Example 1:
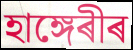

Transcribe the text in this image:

হাঙ্গেৰীৰ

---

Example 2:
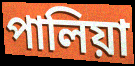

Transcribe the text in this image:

পালিয়া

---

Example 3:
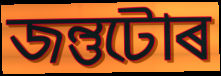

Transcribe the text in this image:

জন্তুটোৰ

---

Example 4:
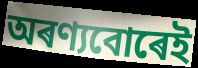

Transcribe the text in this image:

অৰণ্যবোৰেই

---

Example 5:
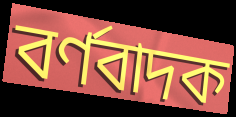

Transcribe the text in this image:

বৰ্ণবাদক